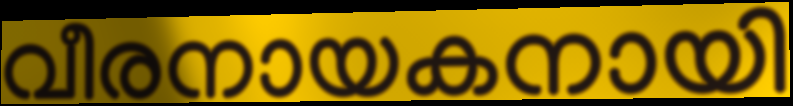
വീരനായകനായി